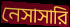
নেসাসারি